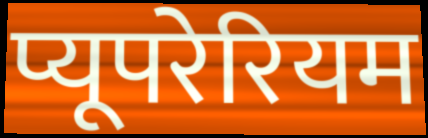
प्यूपरेरियम